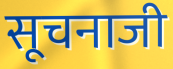
सूचनाजी